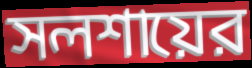
সলশায়ের